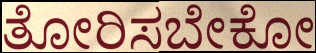
ತೋರಿಸಬೇಕೋ